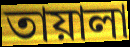
তায়ালা